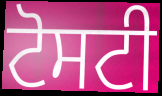
ਟੋਸਟੀ